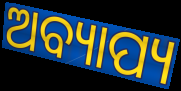
ଅବ୍ୟାପ୍ୟ